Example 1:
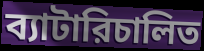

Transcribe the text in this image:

ব্যাটারিচালিত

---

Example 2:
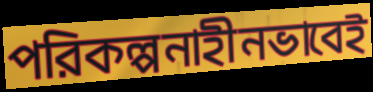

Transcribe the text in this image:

পরিকল্পনাহীনভাবেই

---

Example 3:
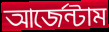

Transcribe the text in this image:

আর্জেন্টাম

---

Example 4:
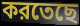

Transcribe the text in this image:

করতেছে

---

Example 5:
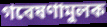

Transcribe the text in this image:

গবেষণামুলক